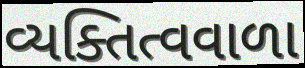
વ્યક્તિત્વવાળા